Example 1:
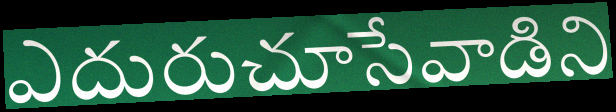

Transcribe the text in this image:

ఎదురుచూసేవాడిని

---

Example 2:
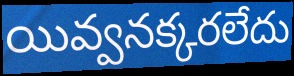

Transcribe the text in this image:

యివ్వనక్కరలేదు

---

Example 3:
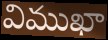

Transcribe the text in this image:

విముఖా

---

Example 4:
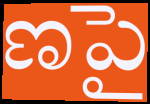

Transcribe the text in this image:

ణపై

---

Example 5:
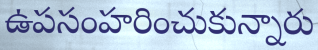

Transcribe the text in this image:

ఉపసంహరించుకున్నారు